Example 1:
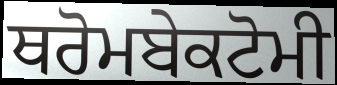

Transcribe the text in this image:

ਥਰੋਮਬੇਕਟੋਮੀ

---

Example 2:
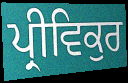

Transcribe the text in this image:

ਪ੍ਰੀਵਿਕੁਰ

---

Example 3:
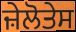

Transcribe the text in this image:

ਜ਼ੇਲੋਤੇਸ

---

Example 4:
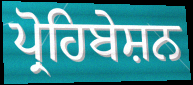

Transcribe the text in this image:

ਪ੍ਰੋਹਿਬੇਸ਼ਨ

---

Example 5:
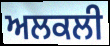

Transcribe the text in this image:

ਅਲਕਲੀ